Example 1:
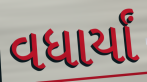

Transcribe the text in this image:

વધાર્યાં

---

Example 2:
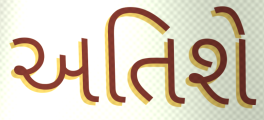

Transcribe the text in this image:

અતિશે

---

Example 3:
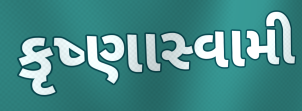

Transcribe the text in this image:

કૃષ્ણાસ્વામી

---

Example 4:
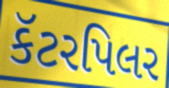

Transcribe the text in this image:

કૅટરપિલર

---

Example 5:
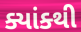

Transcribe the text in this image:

ક્યાંક્થી